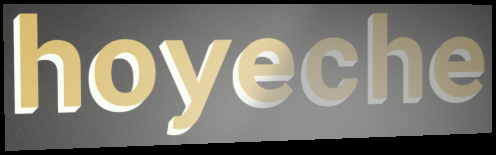
hoyeche